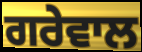
ਗਰੇਵਾਲ